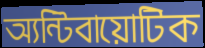
অ্যন্টিবায়োটিক